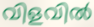
വിളവിൽ